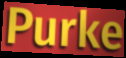
Purke